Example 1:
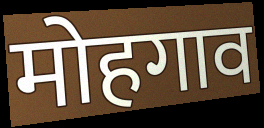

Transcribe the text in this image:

मोहगाव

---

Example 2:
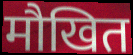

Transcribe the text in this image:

मौखित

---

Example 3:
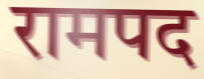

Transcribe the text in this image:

रामपद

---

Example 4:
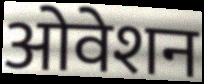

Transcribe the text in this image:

ओवेशन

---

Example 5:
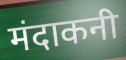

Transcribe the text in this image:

मंदाकनी